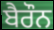
ਬੈਰੌਨ